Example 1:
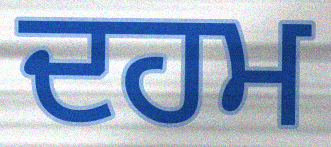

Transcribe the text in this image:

ਦਹਮ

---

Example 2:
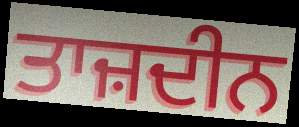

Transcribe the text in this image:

ਤਾਜ਼ਦੀਨ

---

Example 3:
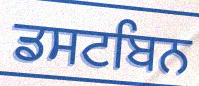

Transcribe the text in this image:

ਡਸਟਬਿਨ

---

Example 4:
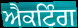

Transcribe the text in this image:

ਐਕਟਿੰਗ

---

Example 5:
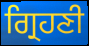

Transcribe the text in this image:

ਗ੍ਰਿਹਣੀ